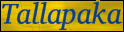
Tallapaka